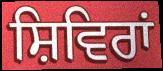
ਸ਼ਿਵਿਰਾਂ